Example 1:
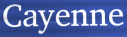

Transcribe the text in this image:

Cayenne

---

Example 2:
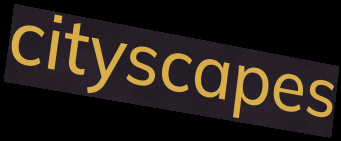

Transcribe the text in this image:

cityscapes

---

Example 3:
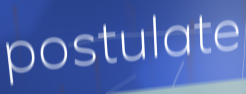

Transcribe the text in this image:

postulate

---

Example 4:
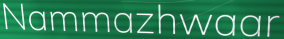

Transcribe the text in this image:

Nammazhwaar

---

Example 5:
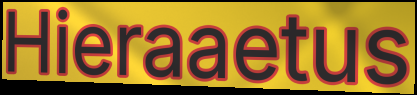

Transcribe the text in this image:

Hieraaetus